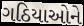
ગઠિયાઓને